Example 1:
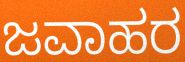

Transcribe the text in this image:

ಜವಾಹರ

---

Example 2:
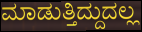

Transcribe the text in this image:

ಮಾಡುತ್ತಿದ್ದುದಲ್ಲ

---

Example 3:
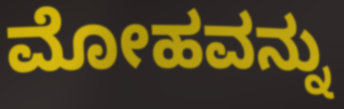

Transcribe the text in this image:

ಮೋಹವನ್ನು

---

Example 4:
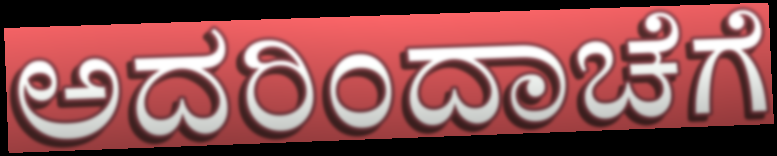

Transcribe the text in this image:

ಅದರಿಂದಾಚೆಗೆ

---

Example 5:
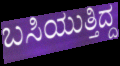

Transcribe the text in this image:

ಬಸಿಯುತ್ತಿದ್ದ